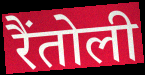
रैंतोली